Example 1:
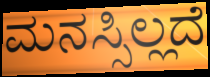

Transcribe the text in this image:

ಮನಸ್ಸಿಲ್ಲದೆ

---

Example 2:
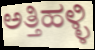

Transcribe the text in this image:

ಅತ್ತಿಹಳ್ಳಿ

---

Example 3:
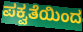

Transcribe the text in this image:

ಪಕ್ವತೆಯಿಂದ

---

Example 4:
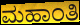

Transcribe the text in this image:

ಮಹಾಂತಿ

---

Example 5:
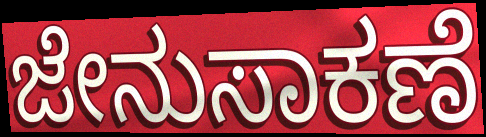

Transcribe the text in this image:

ಜೇನುಸಾಕಣೆ